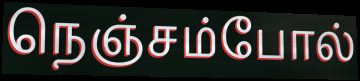
நெஞ்சம்போல்